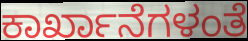
ಕಾರ್ಖಾನೆಗಳಂತೆ